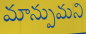
మాన్పుమని